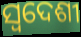
ସ୍ଵଦେଶୀ